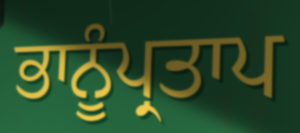
ਭਾਨੂੰਪ੍ਰਤਾਪ